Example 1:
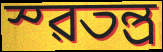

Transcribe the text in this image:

স্ৱতন্ত্ৰ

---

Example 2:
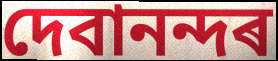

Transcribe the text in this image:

দেবানন্দৰ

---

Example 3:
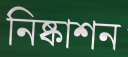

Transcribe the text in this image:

নিষ্কাশন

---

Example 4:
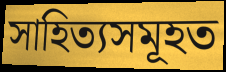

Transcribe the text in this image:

সাহিত্যসমূহত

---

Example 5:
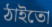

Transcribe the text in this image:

ঠাইতো